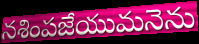
నశింపజేయుమనెను